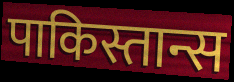
पाकिस्तान्स